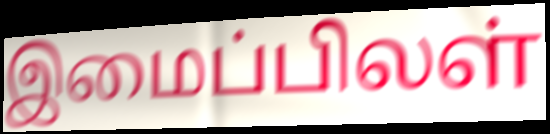
இமைப்பிலள்